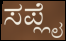
ಸಪ್ಲೈ